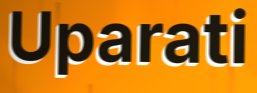
Uparati